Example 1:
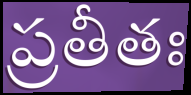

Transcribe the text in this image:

ప్రతీతః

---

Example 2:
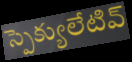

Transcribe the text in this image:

స్పెక్యులేటివ్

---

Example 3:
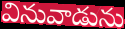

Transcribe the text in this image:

వినువాడును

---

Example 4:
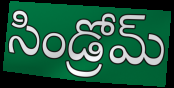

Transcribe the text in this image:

సిండ్రోమ్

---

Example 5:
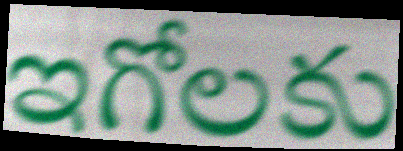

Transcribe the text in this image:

ఇగోలకు